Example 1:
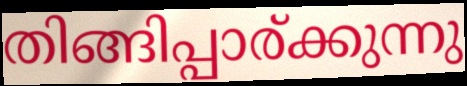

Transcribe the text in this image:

തിങ്ങിപ്പാര്ക്കുന്നു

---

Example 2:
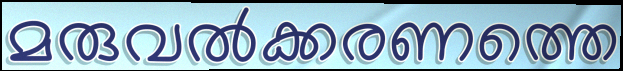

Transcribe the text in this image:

മരുവൽക്കരണത്തെ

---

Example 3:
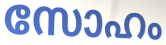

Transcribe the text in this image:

സോഹം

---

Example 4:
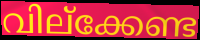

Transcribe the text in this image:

വില്ക്കേണ്ട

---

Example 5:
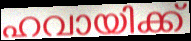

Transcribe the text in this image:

ഹവായിക്ക്